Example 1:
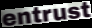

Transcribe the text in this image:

entrust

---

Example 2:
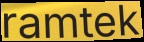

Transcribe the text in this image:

ramtek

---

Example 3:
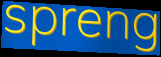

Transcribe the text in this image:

spreng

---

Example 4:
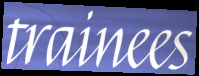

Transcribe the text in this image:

trainees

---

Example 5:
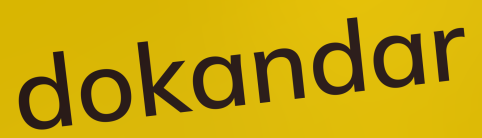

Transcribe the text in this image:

dokandar